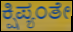
ಕ್ಷಿಪ್ಯಂತೇ